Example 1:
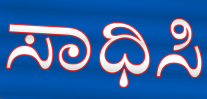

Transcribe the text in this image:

ಸಾಧಿಸಿ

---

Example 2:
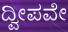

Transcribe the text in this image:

ದ್ವೀಪವೇ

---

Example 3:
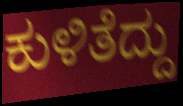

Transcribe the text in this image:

ಕುಳಿತೆದ್ದು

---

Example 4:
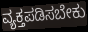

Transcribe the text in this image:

ವ್ಯಕ್ತಪಡಿಸಬೇಕು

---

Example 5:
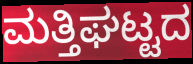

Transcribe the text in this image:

ಮತ್ತಿಘಟ್ಟದ